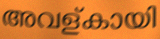
അവള്കായി